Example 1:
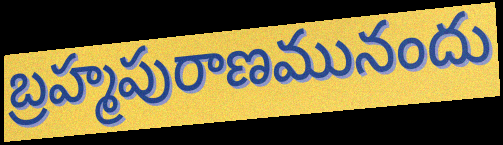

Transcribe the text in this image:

బ్రహ్మపురాణమునందు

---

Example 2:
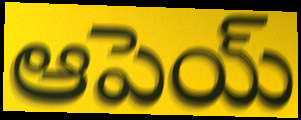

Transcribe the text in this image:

ఆపెయ్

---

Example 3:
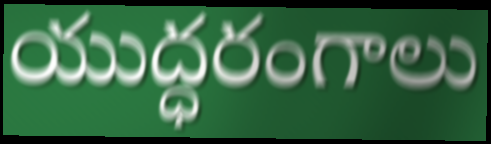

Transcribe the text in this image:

యుద్ధరంగాలు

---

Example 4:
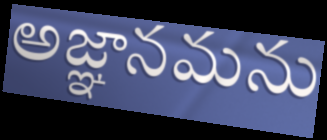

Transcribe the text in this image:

అజ్ఞానమను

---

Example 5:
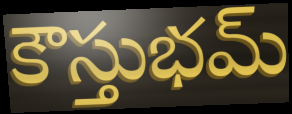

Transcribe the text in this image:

కౌస్తుభమ్